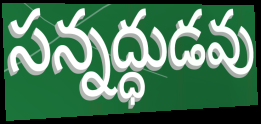
సన్నద్ధుడవు